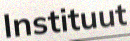
Instituut